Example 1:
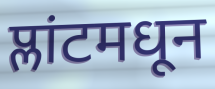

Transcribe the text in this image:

प्लांटमधून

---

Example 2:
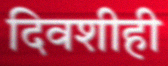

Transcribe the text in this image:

दिवशीही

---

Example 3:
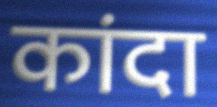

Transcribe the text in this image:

कांदा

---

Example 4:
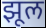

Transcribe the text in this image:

झूल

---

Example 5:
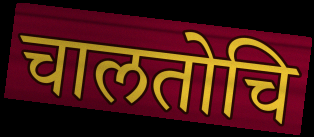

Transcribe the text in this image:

चालतोचि